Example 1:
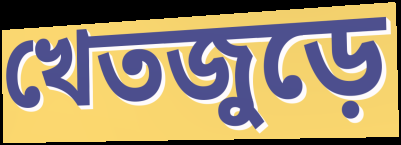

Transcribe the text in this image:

খেতজুড়ে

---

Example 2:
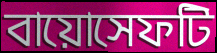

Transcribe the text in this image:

বায়োসেফটি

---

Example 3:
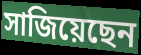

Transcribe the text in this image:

সাজিয়েছেন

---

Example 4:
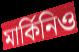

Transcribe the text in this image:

মার্কিনিও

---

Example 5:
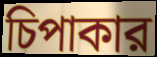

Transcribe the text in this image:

চিপাকার